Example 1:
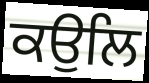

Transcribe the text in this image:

ਕਉਲਿ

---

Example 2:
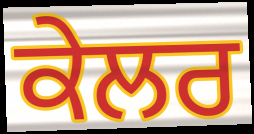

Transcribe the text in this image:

ਕੇਲਰ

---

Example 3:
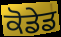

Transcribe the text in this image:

ਕੋਡੇਡ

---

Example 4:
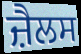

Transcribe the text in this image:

ਜ਼ੈਲਸ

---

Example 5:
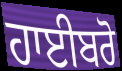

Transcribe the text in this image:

ਹਾਈਬਰੋ